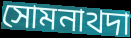
সোমনাথদা